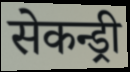
सेकन्ड्री